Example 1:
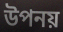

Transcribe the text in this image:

উপনয়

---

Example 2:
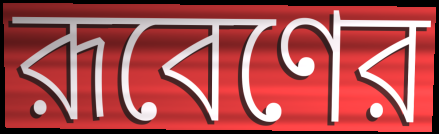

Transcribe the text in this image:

রূবেণের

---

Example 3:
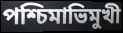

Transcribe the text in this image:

পশ্চিমাভিমুখী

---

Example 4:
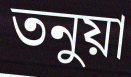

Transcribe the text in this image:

তনুয়া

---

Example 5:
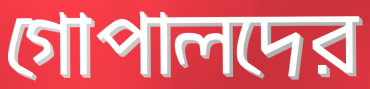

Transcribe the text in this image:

গোপালদের